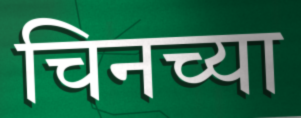
चिनच्या